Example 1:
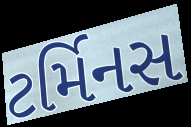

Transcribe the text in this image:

ટર્મિનસ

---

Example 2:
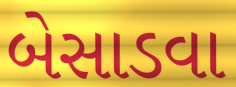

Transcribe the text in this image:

બેસાડવા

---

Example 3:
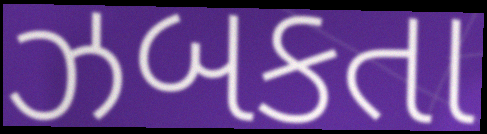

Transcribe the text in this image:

ઝબકતા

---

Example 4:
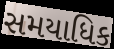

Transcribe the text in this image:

સમયાધિક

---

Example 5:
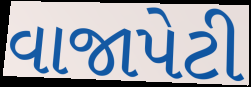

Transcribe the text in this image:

વાજાપેટી